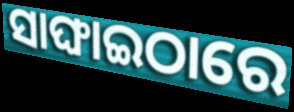
ସାଙ୍ଘାଇଠାରେ